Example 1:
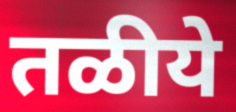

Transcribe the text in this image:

तळीये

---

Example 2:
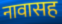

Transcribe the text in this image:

नावासह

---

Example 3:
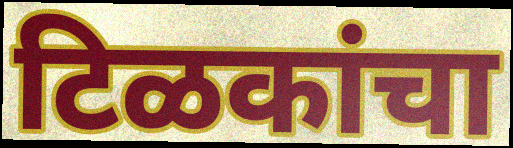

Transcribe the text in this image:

टिळकांचा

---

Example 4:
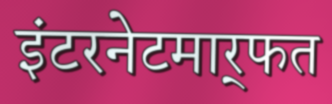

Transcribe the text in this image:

इंटरनेटमार्फत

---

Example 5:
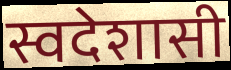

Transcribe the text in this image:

स्वदेशासी